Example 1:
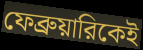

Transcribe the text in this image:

ফেব্রুয়ারিকেই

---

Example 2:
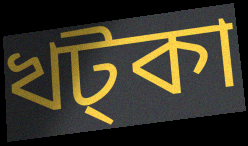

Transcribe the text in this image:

খট্‌কা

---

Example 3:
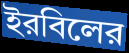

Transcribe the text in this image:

ইরবিলের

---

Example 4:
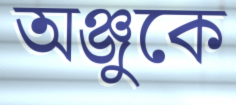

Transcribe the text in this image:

অঞ্জুকে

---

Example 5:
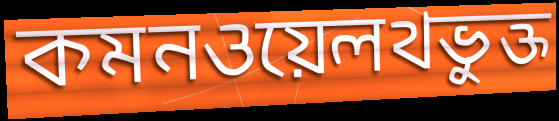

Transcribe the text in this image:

কমনওয়েলথভুক্ত